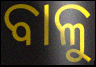
ବାଳୁ